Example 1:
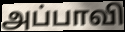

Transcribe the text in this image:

அப்பாவி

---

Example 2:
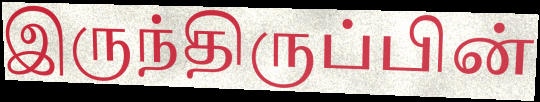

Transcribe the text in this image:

இருந்திருப்பின்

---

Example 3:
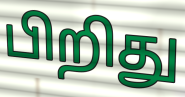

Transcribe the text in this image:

பிறிது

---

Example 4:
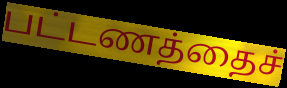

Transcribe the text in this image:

பட்டணத்தைச்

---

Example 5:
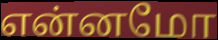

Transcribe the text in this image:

என்னமோ